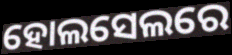
ହୋଲସେଲରେ